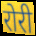
रोरी